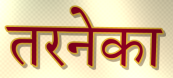
तरनेका